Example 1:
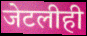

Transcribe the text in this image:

जेटलीही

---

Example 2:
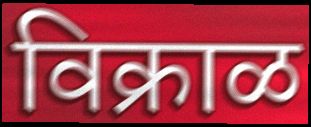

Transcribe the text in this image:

विक्राळ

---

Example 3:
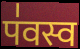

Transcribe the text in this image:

प॑वस्व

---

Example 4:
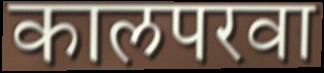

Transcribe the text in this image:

कालपरवा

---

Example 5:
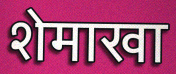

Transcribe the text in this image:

शेमाखा